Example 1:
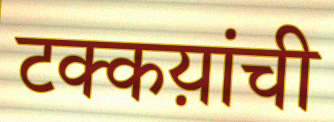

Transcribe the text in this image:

टक्कय़ांची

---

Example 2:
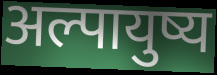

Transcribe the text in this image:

अल्पायुष्य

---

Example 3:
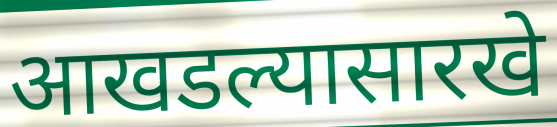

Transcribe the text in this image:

आखडल्यासारखे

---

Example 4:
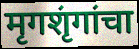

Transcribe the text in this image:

मृगशृंगांचा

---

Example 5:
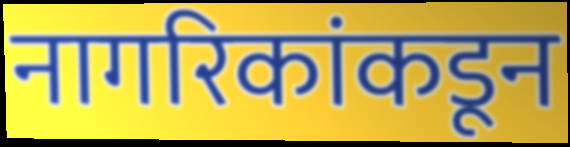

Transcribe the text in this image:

नागरिकांकडून